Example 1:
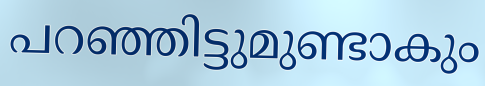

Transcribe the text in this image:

പറഞ്ഞിട്ടുമുണ്ടാകും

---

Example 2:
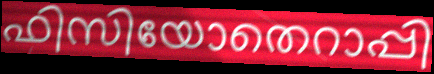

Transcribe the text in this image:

ഫിസിയോതെറാപ്പി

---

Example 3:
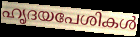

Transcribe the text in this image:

ഹൃദയപേശികൾ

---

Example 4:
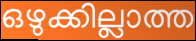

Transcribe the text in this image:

ഒഴുക്കില്ലാത്ത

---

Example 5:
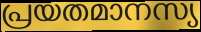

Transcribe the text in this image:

പ്രയതമാനസ്യ